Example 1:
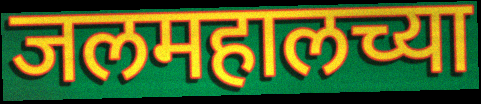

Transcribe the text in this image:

जलमहालच्या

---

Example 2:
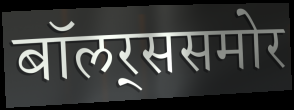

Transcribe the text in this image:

बॉलर्ससमोर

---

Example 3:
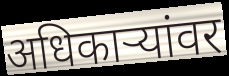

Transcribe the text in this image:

अधिकाऱ्यांवर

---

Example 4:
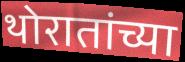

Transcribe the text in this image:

थोरातांच्या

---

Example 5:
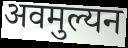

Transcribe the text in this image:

अवमुल्यन